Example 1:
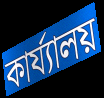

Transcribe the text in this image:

কাৰ্য্যালয়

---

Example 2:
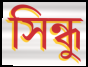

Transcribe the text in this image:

সিন্ধু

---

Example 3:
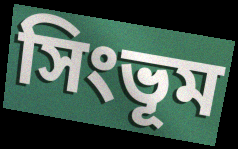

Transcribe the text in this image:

সিংভূম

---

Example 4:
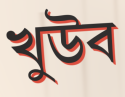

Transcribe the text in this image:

খুউব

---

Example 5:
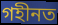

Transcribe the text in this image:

গহীনত